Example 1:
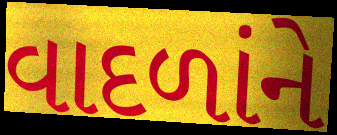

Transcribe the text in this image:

વાદળાંને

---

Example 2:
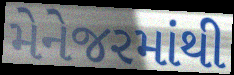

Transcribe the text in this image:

મેનેજરમાંથી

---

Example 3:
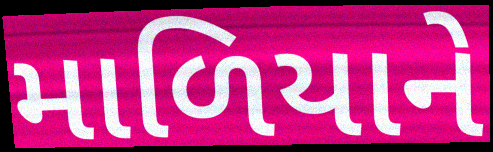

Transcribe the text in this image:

માળિયાને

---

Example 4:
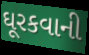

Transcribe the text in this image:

ઘૂરકવાની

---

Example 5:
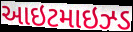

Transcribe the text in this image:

આઇટમાઇઝ્ડ